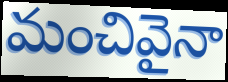
మంచివైనా